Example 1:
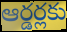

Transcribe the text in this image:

ఆర్డర్లకు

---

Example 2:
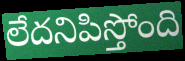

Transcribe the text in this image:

లేదనిపిస్తోంది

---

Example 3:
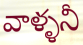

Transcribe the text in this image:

వాళ్ళనీ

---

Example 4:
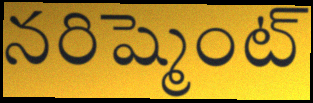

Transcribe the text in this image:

నరిష్మెంట్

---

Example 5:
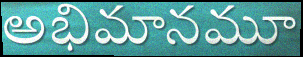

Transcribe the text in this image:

అభిమానమూ